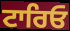
ਟਾਰਿਓ